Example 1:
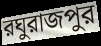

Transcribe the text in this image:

রঘুরাজপুর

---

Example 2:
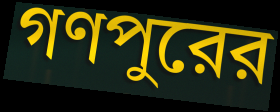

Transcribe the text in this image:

গণপুরের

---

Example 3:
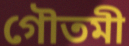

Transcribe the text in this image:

গৌতমী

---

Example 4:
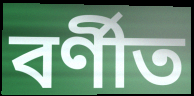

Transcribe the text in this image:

বর্ণীত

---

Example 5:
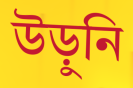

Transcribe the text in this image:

উড়ুনি